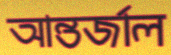
আন্তর্জাল